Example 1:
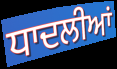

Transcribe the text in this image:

ਧਾਦਲੀਆਂ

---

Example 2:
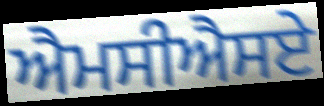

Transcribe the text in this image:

ਐਮਸੀਐਸਏ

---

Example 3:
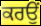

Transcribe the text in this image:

ਕਰਉਂ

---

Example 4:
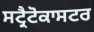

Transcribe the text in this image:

ਸਟ੍ਰੈਟੋਕਾਸਟਰ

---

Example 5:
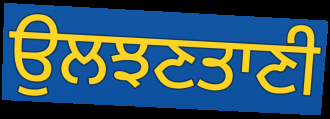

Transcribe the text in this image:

ਉਲਝਣਤਾਣੀ